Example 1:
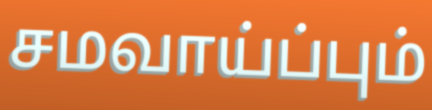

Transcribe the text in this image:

சமவாய்ப்பும்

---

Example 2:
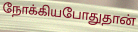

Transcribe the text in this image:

நோக்கியபோதுதான்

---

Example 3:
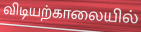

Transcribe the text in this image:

விடியற்காலையில்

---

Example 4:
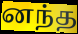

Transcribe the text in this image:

னந்த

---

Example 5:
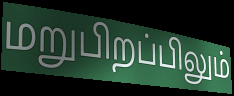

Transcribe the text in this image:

மறுபிறப்பிலும்